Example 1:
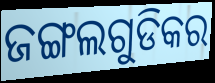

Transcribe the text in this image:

ଜଙ୍ଗଲଗୁଡିକର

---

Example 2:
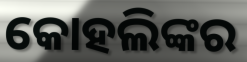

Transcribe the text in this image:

କୋହଲିଙ୍କର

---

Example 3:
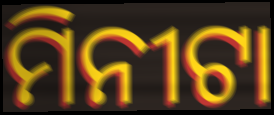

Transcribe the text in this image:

ମିନୀଟା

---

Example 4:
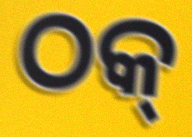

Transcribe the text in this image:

ଠକ୍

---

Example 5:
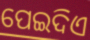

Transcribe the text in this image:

ପେଇଦିଏ